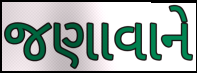
જણાવાને